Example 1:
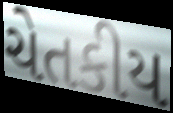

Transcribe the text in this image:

ચેતકીય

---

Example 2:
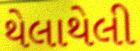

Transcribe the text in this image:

થેલાથેલી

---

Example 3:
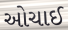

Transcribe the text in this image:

ઓચાઈ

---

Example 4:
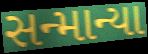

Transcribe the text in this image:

સન્માન્યા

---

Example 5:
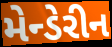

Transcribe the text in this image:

મેન્ડેરીન